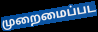
முறைமைப்பட